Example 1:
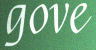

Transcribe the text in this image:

gove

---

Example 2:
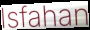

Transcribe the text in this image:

Isfahan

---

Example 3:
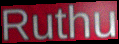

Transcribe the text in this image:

Ruthu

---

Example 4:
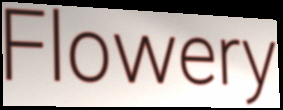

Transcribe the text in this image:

Flowery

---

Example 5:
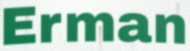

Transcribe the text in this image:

Erman